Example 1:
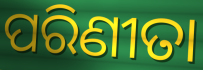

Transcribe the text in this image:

ପରିଣୀତା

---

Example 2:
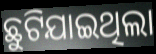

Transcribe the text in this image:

ଛୁଟିଯାଇଥିଲା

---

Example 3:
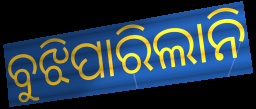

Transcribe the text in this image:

ବୁଝିପାରିଲାନି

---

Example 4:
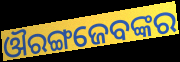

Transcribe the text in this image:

ଔରଙ୍ଗଜେବଙ୍କର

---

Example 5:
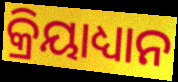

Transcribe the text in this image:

କ୍ରିୟାଧ୍ୟାନ